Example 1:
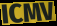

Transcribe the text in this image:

ICMV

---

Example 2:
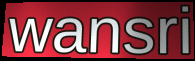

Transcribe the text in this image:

wansri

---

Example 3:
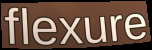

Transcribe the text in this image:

flexure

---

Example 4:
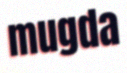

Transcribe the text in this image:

mugda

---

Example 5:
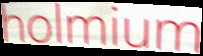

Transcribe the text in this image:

holmium